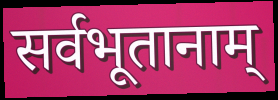
सर्वभूतानाम्